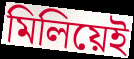
মিলিয়েই